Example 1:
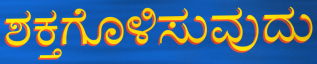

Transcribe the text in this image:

ಶಕ್ತಗೊಳಿಸುವುದು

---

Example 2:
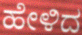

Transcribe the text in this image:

ಹೇಳಿದ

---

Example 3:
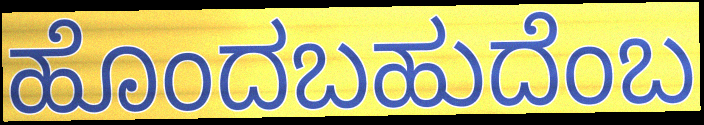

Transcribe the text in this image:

ಹೊಂದಬಹುದೆಂಬ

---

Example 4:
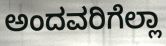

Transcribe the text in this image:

ಅಂದವರಿಗೆಲ್ಲಾ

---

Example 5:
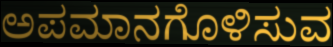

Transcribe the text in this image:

ಅಪಮಾನಗೊಳಿಸುವ